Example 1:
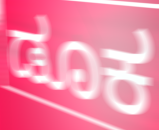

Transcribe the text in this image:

ಡೂಕ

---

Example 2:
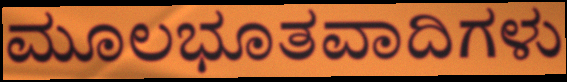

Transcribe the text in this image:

ಮೂಲಭೂತವಾದಿಗಳು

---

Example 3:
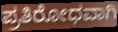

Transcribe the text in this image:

ಪ್ರತಿರೋಧವಾಗಿ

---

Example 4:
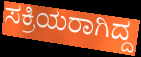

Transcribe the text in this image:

ಸಕ್ರಿಯರಾಗಿದ್ದ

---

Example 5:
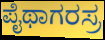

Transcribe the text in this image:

ಪೈಥಾಗರಸ್ರ